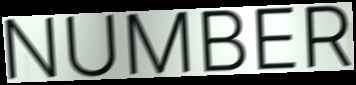
NUMBER